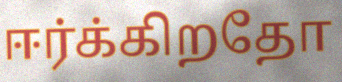
ஈர்க்கிறதோ